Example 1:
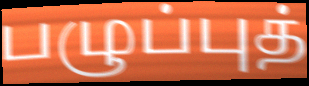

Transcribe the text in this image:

பழுப்புத்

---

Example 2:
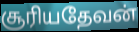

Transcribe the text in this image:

சூரியதேவன்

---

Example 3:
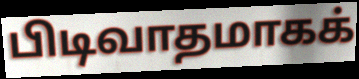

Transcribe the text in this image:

பிடிவாதமாகக்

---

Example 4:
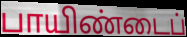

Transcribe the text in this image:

பாயிண்டைப்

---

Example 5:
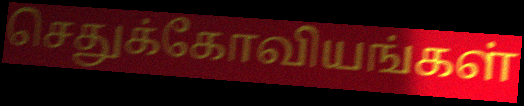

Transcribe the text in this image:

செதுக்கோவியங்கள்